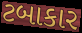
ટબાકાર